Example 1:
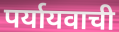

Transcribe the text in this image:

पर्यायवाची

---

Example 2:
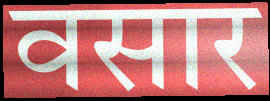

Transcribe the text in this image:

वसार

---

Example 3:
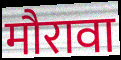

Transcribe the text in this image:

मौरावा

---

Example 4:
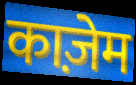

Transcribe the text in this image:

काज़ेम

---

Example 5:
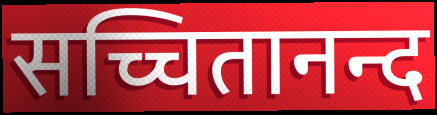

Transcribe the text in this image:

सच्चितानन्द